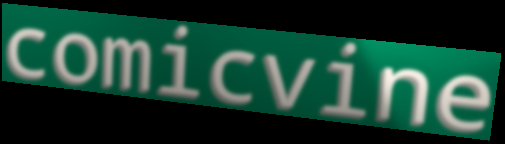
comicvine